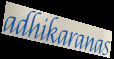
adhikaranas